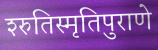
श्रुतिस्मृतिपुराणे